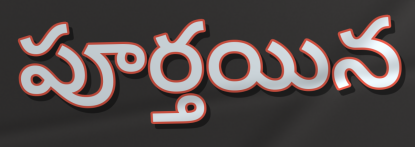
పూర్తయిన